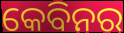
କେବିନର